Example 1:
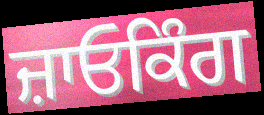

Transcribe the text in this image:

ਜ਼ਾਓਕਿੰਗ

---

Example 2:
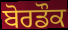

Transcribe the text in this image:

ਬੋਰਡੌਕ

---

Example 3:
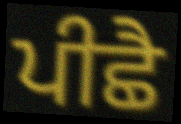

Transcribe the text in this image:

ਪੀਛੈ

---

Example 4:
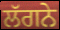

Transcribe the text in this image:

ਲੱਗਨੇ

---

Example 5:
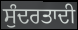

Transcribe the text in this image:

ਸੁੰਦਰਤਾਦੀ